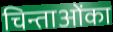
चिन्ताओंका